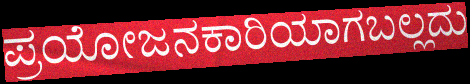
ಪ್ರಯೋಜನಕಾರಿಯಾಗಬಲ್ಲದು